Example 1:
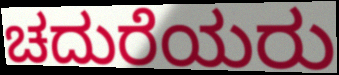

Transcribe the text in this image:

ಚದುರೆಯರು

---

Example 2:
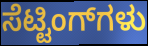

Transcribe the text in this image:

ಸೆಟ್ಟಿಂಗ್‌ಗಳು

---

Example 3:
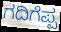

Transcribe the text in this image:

ಗದಿಗೆಪ್ಪ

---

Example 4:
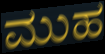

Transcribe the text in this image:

ಮುಹ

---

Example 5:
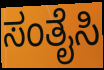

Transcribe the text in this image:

ಸಂತೈಸಿ